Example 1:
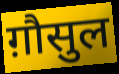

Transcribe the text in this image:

ग़ौसुल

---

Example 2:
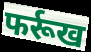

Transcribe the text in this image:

फर्रूख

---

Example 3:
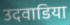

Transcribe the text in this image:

उदवाडिया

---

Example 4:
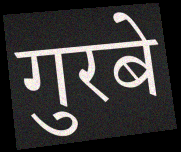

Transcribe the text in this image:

गुरबे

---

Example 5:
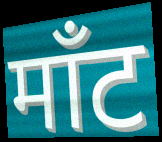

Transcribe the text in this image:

माँट